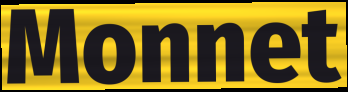
Monnet